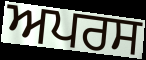
ਅਪਰਸ